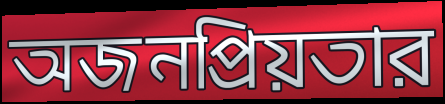
অজনপ্রিয়তার